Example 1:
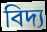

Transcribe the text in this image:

বিদ্য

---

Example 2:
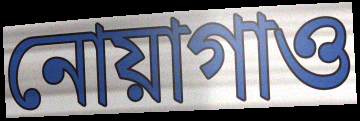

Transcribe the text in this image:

নোয়াগাও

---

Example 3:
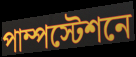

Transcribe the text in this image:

পাম্পস্টেশনে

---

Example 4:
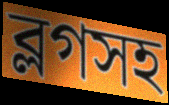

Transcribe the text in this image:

ব্লগসহ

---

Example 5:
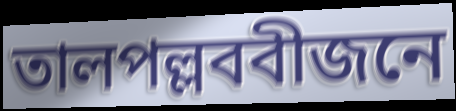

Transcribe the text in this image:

তালপল্লববীজনে